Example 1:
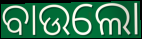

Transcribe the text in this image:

ବାଉଲୋ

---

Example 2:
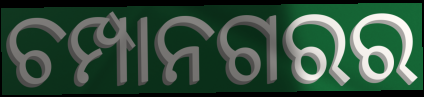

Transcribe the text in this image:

ଚମ୍ପାନଗରର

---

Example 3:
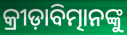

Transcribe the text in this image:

କ୍ରୀଡ଼ାବିତ୍ମାନଙ୍କୁ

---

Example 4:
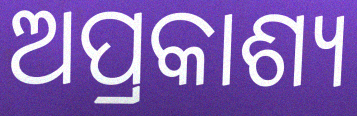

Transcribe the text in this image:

ଅପ୍ରକାଶ୍ୟ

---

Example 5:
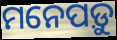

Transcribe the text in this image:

ମନେପଡ଼ୁ